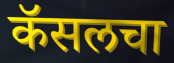
कॅसलचा